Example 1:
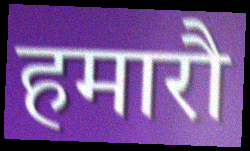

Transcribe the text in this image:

हमारौ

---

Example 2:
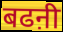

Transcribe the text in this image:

बढऩी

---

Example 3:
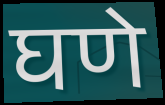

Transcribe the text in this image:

घणे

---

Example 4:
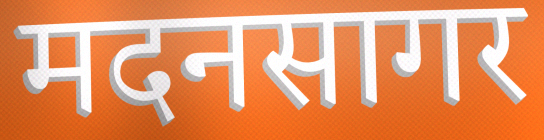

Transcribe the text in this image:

मदनसागर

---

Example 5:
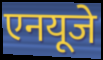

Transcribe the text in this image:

एनयूजे